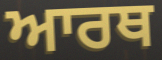
ਆਰਥ